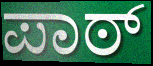
ಪಾಠ್